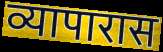
व्यापारास